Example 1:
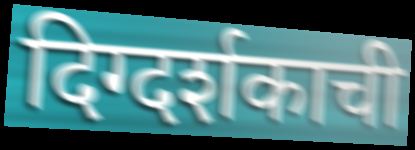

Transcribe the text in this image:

दिग्दर्शकाची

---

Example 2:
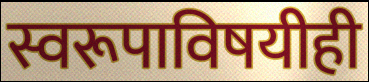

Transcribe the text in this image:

स्वरूपाविषयीही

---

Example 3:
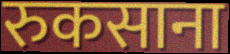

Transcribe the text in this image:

रुकसाना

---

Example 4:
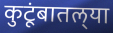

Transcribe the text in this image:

कुटूंबातल्या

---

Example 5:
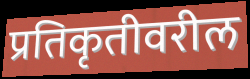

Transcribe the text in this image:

प्रतिकृतीवरील